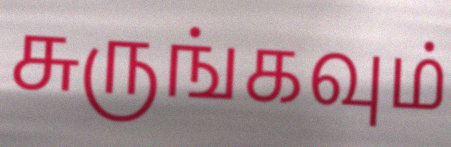
சுருங்கவும்